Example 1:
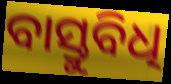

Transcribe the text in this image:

ବାସ୍ତୁବିଧି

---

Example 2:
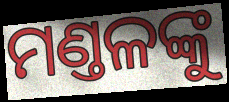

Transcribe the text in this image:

ମଣ୍ତଳଙ୍କୁ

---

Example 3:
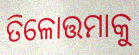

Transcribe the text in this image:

ତିଳୋତ୍ତମାକୁ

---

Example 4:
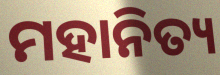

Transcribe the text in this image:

ମହାନିତ୍ୟ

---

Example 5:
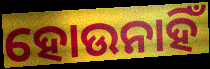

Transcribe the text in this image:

ହୋଉନାହିଁ